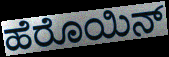
ಹೆರೊಯಿನ್